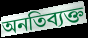
অনতিব্যক্ত